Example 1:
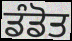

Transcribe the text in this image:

ਡੰਡੋਤ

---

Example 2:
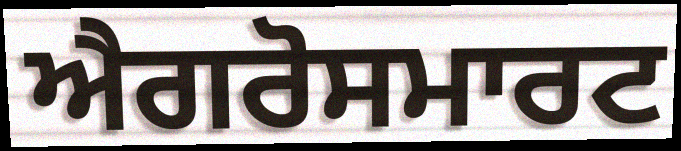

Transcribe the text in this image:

ਐਗਰੋਸਮਾਰਟ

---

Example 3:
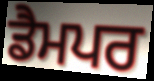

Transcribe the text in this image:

ਡੈਮਪਰ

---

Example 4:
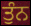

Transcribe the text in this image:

ਤੁੰਨ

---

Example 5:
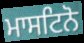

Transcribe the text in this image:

ਮਾਸਟਿਨੋ